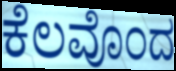
ಕೆಲವೊಂದ